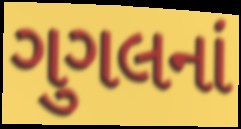
ગુગલનાં